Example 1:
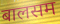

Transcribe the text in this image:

बालसम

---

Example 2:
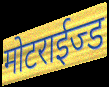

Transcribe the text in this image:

मोटराईज्ड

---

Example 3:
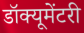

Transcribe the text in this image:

डॉक्यूमेंटरी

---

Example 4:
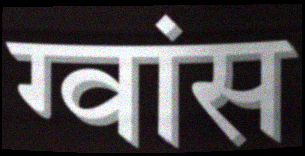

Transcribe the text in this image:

ग्वांस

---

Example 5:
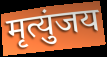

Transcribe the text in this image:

मृत्युंजय